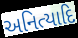
અનિત્યાદિ